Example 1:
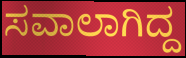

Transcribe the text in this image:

ಸವಾಲಾಗಿದ್ದ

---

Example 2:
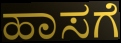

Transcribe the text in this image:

ಹಾಸಗೆ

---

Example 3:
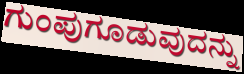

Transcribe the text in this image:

ಗುಂಪುಗೂಡುವುದನ್ನು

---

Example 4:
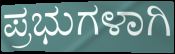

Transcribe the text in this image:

ಪ್ರಭುಗಳಾಗಿ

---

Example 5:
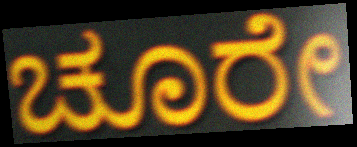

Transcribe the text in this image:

ಚೂರೇ